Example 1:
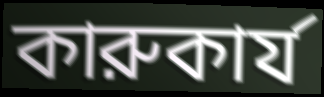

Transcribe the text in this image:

কাৰুকাৰ্য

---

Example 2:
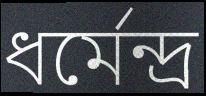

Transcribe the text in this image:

ধৰ্মেন্দ্ৰ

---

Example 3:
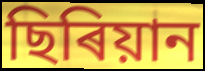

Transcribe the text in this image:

ছিৰিয়ান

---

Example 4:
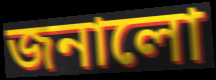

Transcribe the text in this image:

জনালো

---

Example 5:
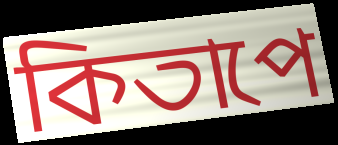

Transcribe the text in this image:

কিতাপে